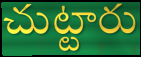
చుట్టారు